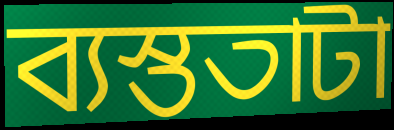
ব্যস্ততাটা